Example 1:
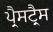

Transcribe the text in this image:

ਪ੍ਰੈਸਟ੍ਰੈਸ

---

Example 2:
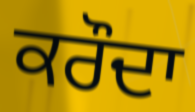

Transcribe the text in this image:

ਕਰੌਦਾ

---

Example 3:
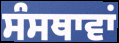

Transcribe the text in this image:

ਸੰਸਥਾਵਾਂ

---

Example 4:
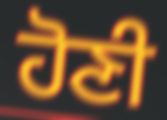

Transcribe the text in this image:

ਹੋਣੀ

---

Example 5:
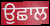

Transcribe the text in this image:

ਉਛਾਲ